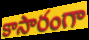
కాసారంగా